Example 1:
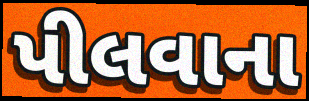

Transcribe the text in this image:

પીલવાના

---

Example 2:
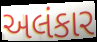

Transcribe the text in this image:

અલંકાર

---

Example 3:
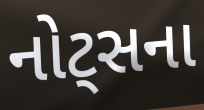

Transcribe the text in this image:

નોટ્સના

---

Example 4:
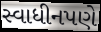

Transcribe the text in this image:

સ્વાધીનપણે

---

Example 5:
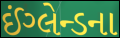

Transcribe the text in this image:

ઈંગ્લેન્ડના